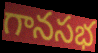
గానసభ